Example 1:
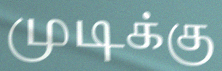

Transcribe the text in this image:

முடிக்கு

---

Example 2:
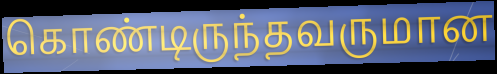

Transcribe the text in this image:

கொண்டிருந்தவருமான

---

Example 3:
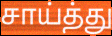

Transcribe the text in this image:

சாய்த்து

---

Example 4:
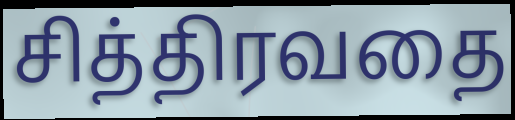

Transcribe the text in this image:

சித்திரவதை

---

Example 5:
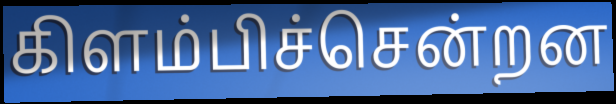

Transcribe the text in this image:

கிளம்பிச்சென்றன